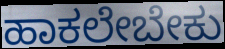
ಹಾಕಲೇಬೇಕು